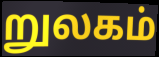
றுலகம்